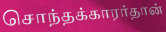
சொந்தக்காரர்தான்